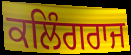
ਕਲਿੰਗਰਾਜ